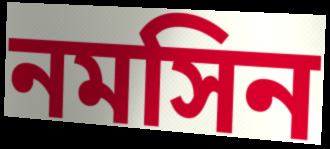
নমসিন